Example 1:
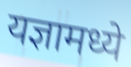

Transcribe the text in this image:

यज्ञामध्ये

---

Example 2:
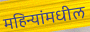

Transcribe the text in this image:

महिन्यांमधील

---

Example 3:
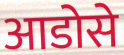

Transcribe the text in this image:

आडोसे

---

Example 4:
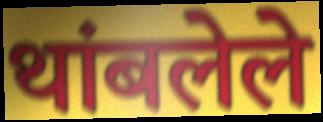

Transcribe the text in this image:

थांबलेले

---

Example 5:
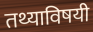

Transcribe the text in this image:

तथ्याविषयी